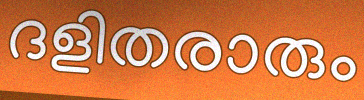
ദളിതരാരും